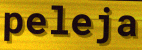
peleja